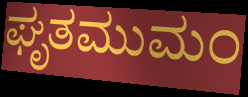
ಘೃತಮುಮಂ